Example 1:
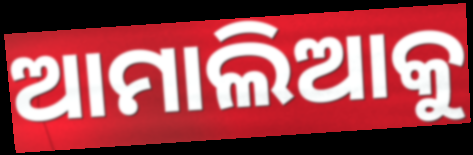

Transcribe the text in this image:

ଆମାଲିଆକୁ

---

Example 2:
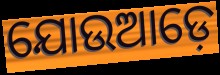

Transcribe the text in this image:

ଯୋଉଆଡ଼େ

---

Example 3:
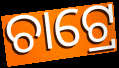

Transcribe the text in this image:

ଚାଟ୍ରେ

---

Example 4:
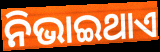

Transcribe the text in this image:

ନିଭାଇଥାଏ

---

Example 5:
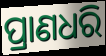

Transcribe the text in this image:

ପ୍ରାଣଧରି